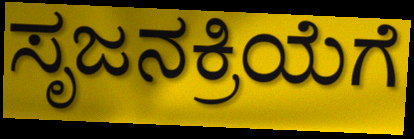
ಸೃಜನಕ್ರಿಯೆಗೆ